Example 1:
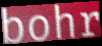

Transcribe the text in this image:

bohr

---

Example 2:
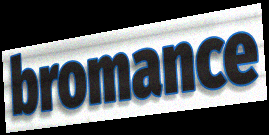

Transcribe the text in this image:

bromance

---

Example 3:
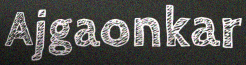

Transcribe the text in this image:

Ajgaonkar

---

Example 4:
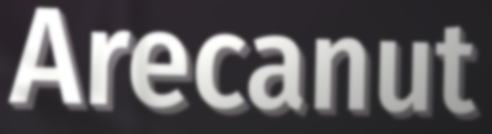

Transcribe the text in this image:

Arecanut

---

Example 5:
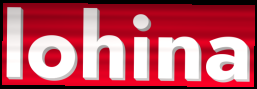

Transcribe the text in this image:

lohina